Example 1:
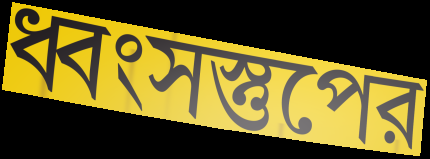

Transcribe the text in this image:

ধ্বংসস্তুপের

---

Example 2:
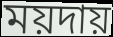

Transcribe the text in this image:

ময়দায়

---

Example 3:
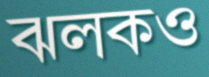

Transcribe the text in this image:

ঝলকও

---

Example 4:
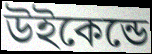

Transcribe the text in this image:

উইকেন্ডে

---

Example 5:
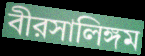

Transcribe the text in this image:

বীরসালিঙ্গম